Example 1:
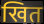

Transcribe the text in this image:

खित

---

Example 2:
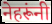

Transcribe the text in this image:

नेहरूंनी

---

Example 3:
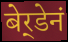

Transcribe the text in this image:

बेर्डेनं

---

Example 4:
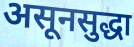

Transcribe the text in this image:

असूनसुद्धा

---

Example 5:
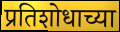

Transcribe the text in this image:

प्रतिशोधाच्या